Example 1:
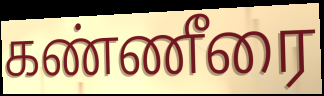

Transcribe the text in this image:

கண்ணீரை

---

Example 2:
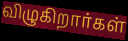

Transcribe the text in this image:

விழுகிறார்கள்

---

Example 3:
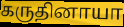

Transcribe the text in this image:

கருதினாயா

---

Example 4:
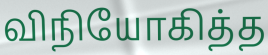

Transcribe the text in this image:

விநியோகித்த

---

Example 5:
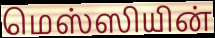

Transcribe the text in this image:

மெஸ்ஸியின்